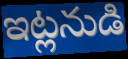
ఇట్లనుడి